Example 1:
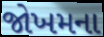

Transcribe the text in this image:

જોખમના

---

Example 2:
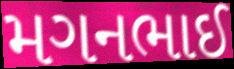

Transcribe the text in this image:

મગનભાઈ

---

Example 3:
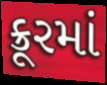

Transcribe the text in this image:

ક્રૂરમાં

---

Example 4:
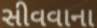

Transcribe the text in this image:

સીવવાના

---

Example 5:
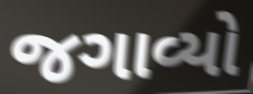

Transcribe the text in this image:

જગાવ્યો